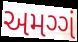
અમગ્ગં